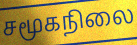
சமூகநிலை